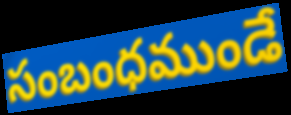
సంబంధముండే